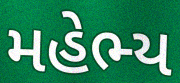
મહેભ્ય